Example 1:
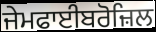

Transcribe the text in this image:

ਜੇਮਫਾਈਬਰੋਜ਼ਿਲ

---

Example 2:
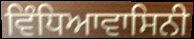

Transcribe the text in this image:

ਵਿੰਧਿਆਵਾਸਿਨੀ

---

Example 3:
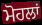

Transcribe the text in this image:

ਮੋਹਲਾਂ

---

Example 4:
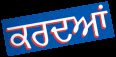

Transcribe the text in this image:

ਕਰਦਆਂ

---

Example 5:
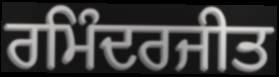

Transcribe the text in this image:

ਰਮਿੰਦਰਜੀਤ